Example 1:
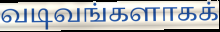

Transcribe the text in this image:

வடிவங்களாகக்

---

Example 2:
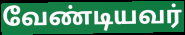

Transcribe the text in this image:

வேண்டியவர்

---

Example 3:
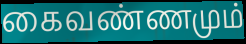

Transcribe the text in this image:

கைவண்ணமும்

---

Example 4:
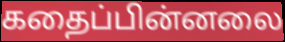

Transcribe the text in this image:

கதைப்பின்னலை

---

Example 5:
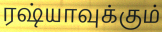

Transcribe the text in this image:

ரஷ்யாவுக்கும்